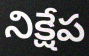
నిక్షేప